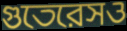
গুতেরেসও